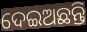
ଦେଇଅଛନ୍ତି